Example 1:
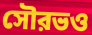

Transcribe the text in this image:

সৌরভও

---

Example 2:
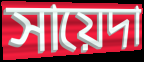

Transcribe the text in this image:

সায়েদা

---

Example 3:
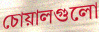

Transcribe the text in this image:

চোয়ালগুলো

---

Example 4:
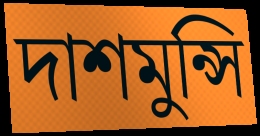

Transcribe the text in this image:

দাশমুন্সি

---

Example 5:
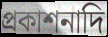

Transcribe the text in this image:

প্রকাশনাদি